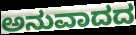
ಅನುವಾದದ